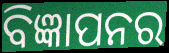
ବିଜ୍ଞାପନର